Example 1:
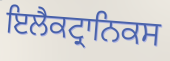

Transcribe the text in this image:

ਇਲੈਕਟ੍ਰਾਨਿਕਸ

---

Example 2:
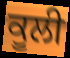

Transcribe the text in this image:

ਕੂਲੀ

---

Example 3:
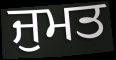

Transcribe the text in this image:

ਜੁਮਤ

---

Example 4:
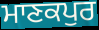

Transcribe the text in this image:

ਮਾਣਕਪੁਰ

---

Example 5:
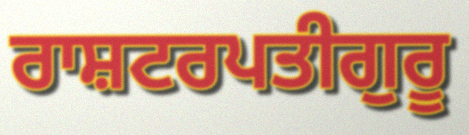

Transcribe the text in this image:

ਰਾਸ਼ਟਰਪਤੀਗੁਰੂ